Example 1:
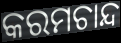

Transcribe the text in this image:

କରମଚାନ୍ଦ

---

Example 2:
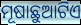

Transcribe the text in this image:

ମୂଷାଛୁଆଟିଏ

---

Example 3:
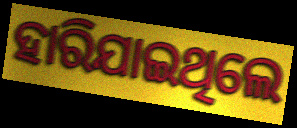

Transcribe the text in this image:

ହାରିଯାଇଥିଲେ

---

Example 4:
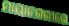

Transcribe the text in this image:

ମାୟାନଗରୀରେ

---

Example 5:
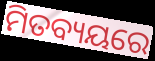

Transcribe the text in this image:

ମିତବ୍ୟୟରେ